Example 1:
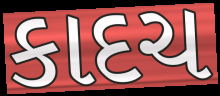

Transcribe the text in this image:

કાદચ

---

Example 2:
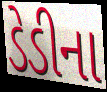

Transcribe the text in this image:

ડેડીના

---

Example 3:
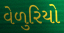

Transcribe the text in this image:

વેળુરિયો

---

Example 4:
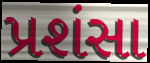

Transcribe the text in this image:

પ્રશંસા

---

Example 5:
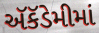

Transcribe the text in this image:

ઍકૅડેમીમાં